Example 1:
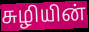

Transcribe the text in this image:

சுழியின்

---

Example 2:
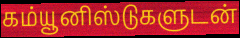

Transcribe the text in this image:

கம்யூனிஸ்டுகளுடன்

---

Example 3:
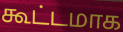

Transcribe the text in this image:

கூட்டமாக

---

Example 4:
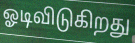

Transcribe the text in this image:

ஓடிவிடுகிறது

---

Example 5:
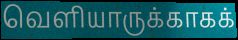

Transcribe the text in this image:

வெளியாருக்காகக்